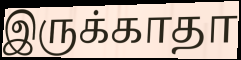
இருக்காதா